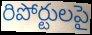
రిపోర్టులపై